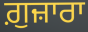
ਗ਼ੁਜ਼ਾਰਾ